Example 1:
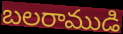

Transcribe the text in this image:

బలరాముడి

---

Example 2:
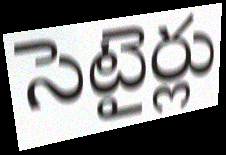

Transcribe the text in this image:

సెటైర్లు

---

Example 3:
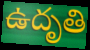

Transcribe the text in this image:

ఉదృతి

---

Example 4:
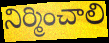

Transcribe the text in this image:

నిర్మించాలి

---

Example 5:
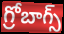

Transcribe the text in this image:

గ్రోబాగ్స్